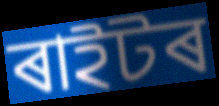
ৰাইটৰ